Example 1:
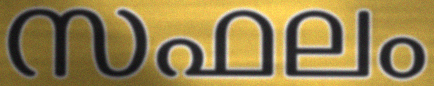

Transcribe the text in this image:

സഫലം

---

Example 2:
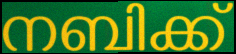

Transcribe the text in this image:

നബിക്ക്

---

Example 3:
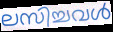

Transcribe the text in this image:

ലസിച്ചവൾ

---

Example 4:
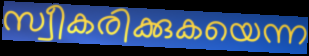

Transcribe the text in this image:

സ്വീകരിക്കുകയെന്ന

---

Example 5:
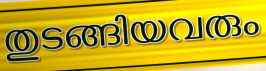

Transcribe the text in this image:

തുടങ്ങിയവരും